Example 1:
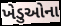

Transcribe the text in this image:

ખેડુઓના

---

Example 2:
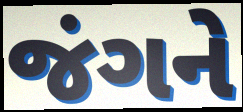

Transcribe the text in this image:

જંગને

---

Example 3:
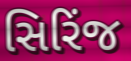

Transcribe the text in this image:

સિરિંજ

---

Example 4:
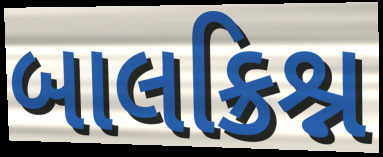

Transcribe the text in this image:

બાલક્રિશ્ન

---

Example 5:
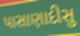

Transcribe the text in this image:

પાસાણાદીસુ